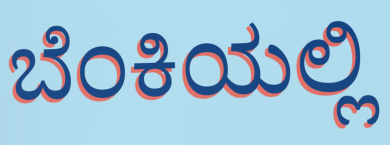
ಬೆಂಕಿಯಲ್ಲಿ